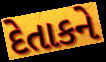
દેતાકને